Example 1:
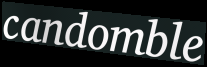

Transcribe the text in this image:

candomble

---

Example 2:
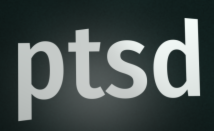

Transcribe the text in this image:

ptsd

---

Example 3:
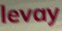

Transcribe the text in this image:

levay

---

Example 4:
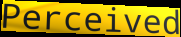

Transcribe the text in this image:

Perceived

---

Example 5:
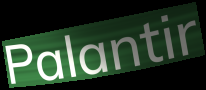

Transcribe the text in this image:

Palantir